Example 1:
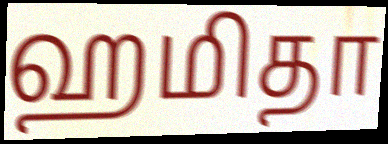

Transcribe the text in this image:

ஹமிதா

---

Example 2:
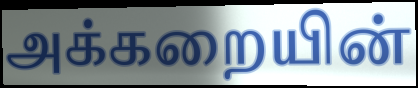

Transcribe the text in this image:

அக்கறையின்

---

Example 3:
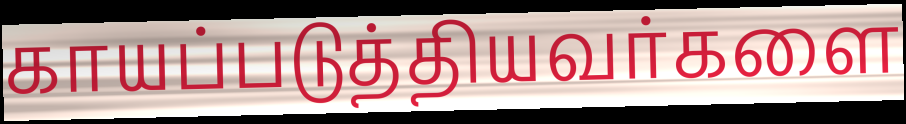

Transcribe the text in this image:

காயப்படுத்தியவர்களை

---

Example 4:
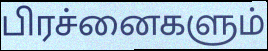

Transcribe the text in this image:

பிரச்னைகளும்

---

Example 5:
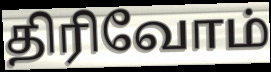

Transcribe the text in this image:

திரிவோம்